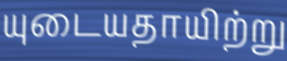
யுடையதாயிற்று